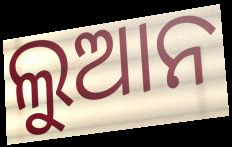
ଲୁଆନ